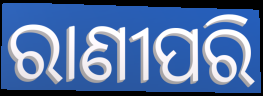
ରାଣୀପରି